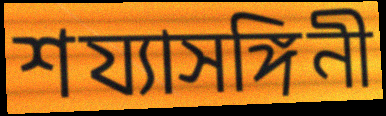
শয্যাসঙ্গিনী